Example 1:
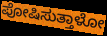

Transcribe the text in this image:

ಪೋಷಿಸುತ್ತಾಳೋ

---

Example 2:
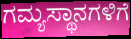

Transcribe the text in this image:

ಗಮ್ಯಸ್ಥಾನಗಳಿಗೆ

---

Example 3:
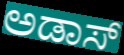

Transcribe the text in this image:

ಅಡಾಸ್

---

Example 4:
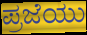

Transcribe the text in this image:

ಪ್ರಜೆಯು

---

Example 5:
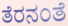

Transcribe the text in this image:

ತೆರನಂತೆ